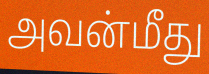
அவன்மீது